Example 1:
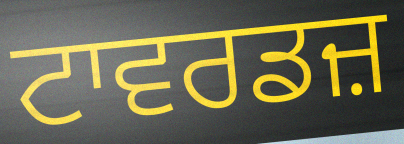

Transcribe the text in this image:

ਟਾਵਰਡਜ਼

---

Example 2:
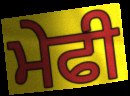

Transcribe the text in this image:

ਮੇਫੀ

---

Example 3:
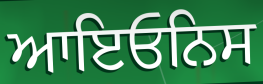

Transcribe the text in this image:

ਆਇਓਨਿਸ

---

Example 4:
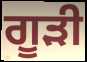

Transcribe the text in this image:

ਗੂੜੀ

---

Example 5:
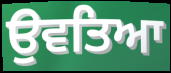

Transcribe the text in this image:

ਉਵਤਿਆ